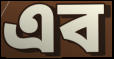
এব